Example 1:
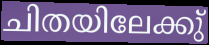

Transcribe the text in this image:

ചിതയിലേക്കു്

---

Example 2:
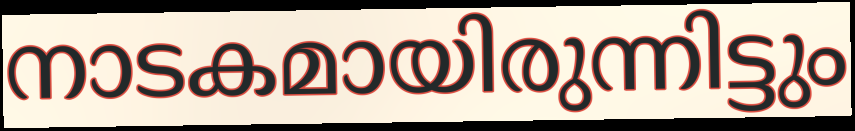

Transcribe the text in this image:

നാടകമായിരുന്നിട്ടും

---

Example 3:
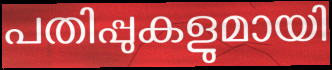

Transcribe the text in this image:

പതിപ്പുകളുമായി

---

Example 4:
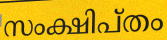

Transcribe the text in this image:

സംക്ഷിപ്തം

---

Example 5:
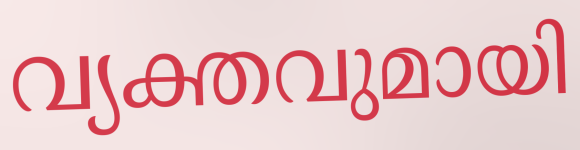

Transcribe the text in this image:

വ്യക്തവുമായി